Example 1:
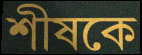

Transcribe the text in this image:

শীষকে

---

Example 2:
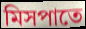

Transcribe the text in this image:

মিসপাতে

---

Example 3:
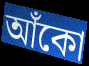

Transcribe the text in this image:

আঁকো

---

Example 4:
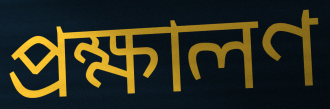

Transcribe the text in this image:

প্রক্ষালণ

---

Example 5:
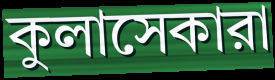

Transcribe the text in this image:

কুলাসেকারা